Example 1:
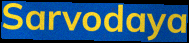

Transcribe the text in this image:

Sarvodaya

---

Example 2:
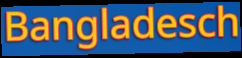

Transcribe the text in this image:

Bangladesch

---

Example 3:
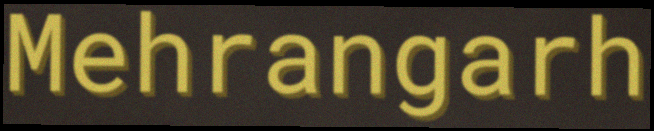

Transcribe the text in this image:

Mehrangarh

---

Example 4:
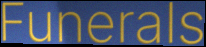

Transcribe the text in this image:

Funerals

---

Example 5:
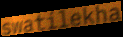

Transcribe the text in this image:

swatilekha